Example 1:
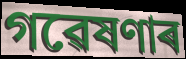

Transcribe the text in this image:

গৱেষণাৰ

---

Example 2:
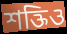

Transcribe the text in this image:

শক্তিও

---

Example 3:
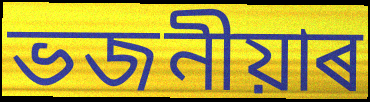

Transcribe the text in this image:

ভজনীয়াৰ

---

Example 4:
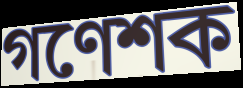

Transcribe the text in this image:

গণেশক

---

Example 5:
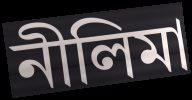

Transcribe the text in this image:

নীলিমা